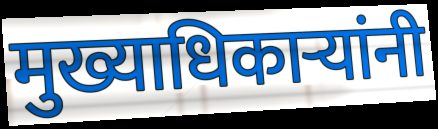
मुख्याधिकाऱ्यांनी